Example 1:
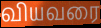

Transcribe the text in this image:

வியவரை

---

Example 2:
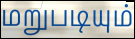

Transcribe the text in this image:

மறுபடியும்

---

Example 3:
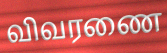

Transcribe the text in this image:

விவரணை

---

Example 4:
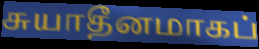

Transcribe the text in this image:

சுயாதீனமாகப்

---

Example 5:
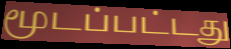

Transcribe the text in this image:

மூடப்பட்டது